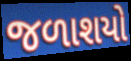
જળાશયો